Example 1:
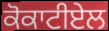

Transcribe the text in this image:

ਕੋਕਾਟੀਏਲ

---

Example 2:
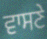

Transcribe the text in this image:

ਵਾਸਣੇ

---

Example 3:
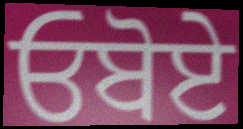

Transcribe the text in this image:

ਓਬੋਏ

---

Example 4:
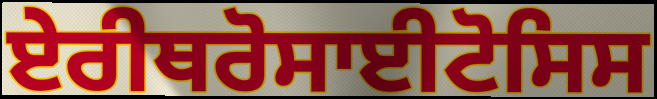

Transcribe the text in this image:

ਏਰੀਥਰੋਸਾਈਟੋਸਿਸ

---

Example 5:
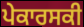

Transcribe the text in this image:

ਪੇਕਾਰਸਕੀ